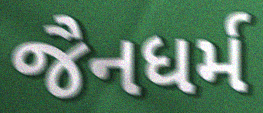
જૈનધર્મ